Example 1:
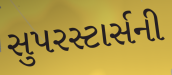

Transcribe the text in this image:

સુપરસ્ટાર્સની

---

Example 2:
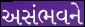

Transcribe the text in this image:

અસંભવને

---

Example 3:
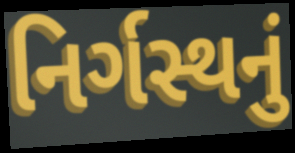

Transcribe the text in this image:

નિર્ગસ્થનું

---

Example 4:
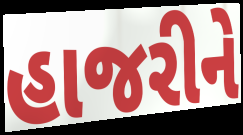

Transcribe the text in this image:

હાજરીને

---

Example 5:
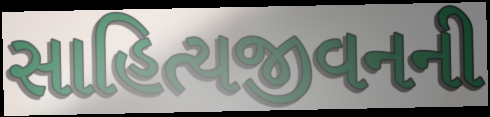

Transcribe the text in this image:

સાહિત્યજીવનની